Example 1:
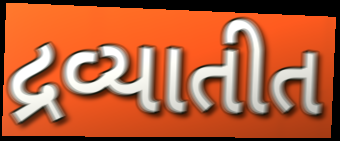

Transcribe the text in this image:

દ્રવ્યાતીત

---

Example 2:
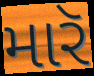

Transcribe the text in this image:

મારૅ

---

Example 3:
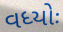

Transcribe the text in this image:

વધ્યોઃ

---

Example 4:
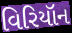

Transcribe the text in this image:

વિરિયૉન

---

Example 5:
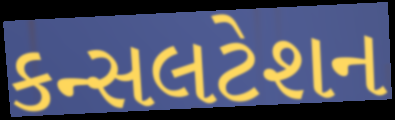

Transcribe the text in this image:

કન્સલટેશન